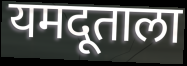
यमदूताला